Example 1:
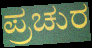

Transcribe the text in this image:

ಪ್ರಚುರ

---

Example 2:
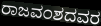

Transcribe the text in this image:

ರಾಜವಂಶದವರ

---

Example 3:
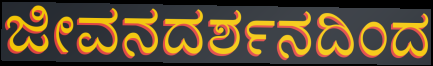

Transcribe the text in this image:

ಜೀವನದರ್ಶನದಿಂದ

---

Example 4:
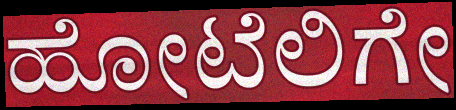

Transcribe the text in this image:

ಹೋಟೆಲಿಗೇ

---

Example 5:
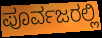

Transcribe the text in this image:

ಪೂರ್ವಜರಲ್ಲಿ